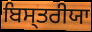
ਬਿਸ੍ਤਰੀਯਾ